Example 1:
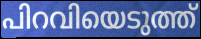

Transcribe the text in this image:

പിറവിയെടുത്ത്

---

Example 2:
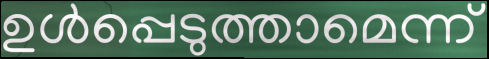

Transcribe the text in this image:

ഉൾപ്പെടുത്താമെന്ന്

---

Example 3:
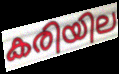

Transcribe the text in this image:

കരിയില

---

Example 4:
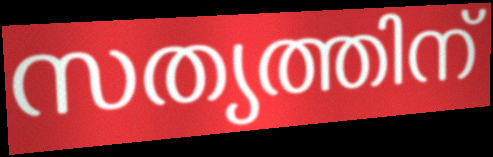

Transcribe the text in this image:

സത്യത്തിന്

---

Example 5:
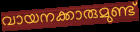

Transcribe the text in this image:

വായനക്കാരുമുണ്ട്